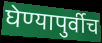
घेण्यापुर्वीच